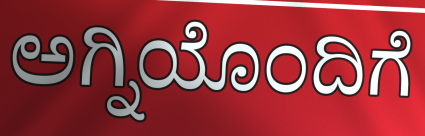
ಅಗ್ನಿಯೊಂದಿಗೆ